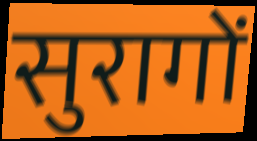
सुरागों